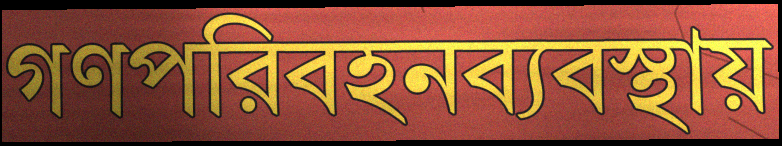
গণপরিবহনব্যবস্থায়